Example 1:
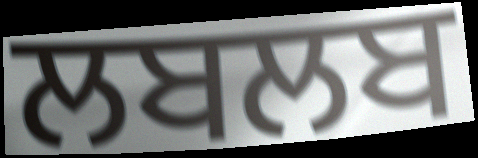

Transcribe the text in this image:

ਲਬਲਬ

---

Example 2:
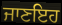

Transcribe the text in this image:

ਜਾਣਇਹ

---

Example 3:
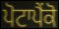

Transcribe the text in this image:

ਪੋਟਾਪੈਂਕੋ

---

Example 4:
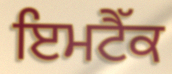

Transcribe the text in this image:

ਇਮਟੈੱਕ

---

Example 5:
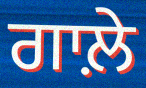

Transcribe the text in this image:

ਗਾਲ਼ੇ